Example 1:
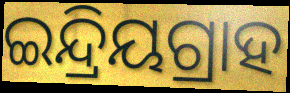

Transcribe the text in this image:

ଇନ୍ଦ୍ରିୟଗ୍ରାହ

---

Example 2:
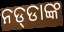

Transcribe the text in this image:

ନଡ୍‌ଡାଙ୍କ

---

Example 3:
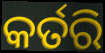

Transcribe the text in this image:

କର୍ତରି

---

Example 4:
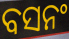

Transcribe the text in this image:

ବସନଂ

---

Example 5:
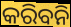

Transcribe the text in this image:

କରିବନି